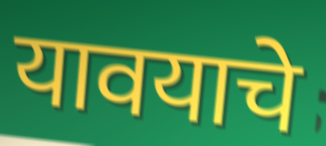
यावयाचे